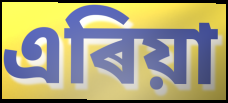
এৰিয়া